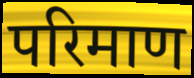
परिमाण